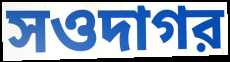
সওদাগর